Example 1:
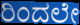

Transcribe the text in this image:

ರಿಂದಲೇ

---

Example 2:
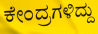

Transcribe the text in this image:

ಕೇಂದ್ರಗಳಿದ್ದು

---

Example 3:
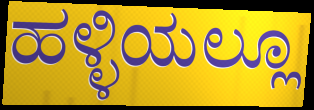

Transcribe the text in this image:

ಹಳ್ಳಿಯಲ್ಲೂ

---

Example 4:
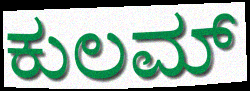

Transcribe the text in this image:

ಕುಲಮ್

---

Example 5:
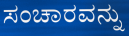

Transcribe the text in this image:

ಸಂಚಾರವನ್ನು